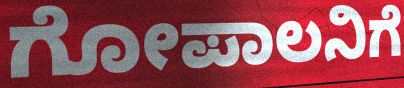
ಗೋಪಾಲನಿಗೆ